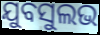
ଯୁବସୁଲଭ